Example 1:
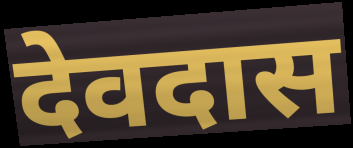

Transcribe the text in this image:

देवदास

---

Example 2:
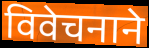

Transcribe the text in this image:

विवेचनाने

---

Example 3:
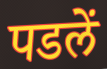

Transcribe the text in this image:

पडलें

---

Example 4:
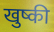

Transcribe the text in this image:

खुष्की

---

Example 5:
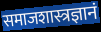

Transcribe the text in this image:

समाजशास्त्रज्ञानं